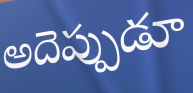
అదెప్పుడూ